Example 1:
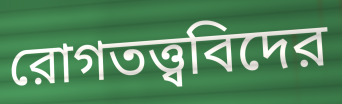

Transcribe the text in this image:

রোগতত্ত্ববিদের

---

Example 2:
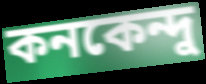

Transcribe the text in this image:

কনকেন্দু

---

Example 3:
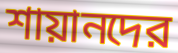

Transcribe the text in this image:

শায়ানদের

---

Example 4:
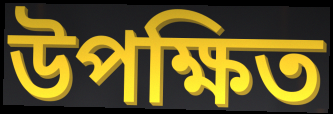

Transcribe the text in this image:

উপক্ষিত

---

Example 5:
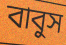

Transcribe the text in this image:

বাবুস